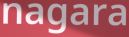
nagara